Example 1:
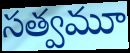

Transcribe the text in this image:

సత్వమూ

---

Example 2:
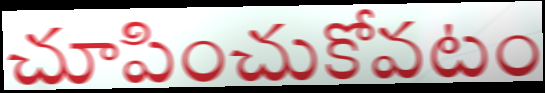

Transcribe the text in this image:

చూపించుకోవటం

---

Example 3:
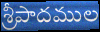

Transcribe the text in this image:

శ్రీపాదముల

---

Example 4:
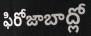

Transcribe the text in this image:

ఫిరోజాబాద్లో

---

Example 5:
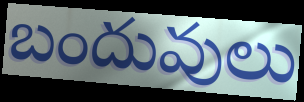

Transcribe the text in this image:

బందువులు